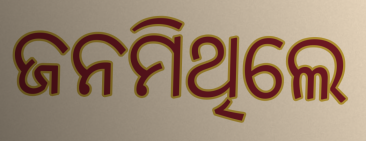
ଜନମିଥିଲେ